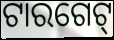
ଟାରଗେଟ୍